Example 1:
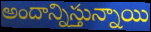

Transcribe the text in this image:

అందాన్నిస్తున్నాయి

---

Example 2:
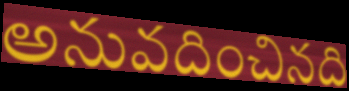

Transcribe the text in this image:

అనువదించినది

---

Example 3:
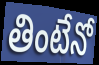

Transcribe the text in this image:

తింటేనో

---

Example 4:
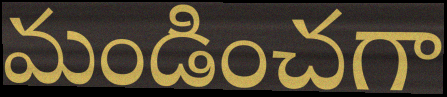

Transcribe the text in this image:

మండించగా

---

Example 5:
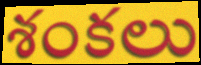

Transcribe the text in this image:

శంకలు